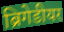
ब्रिगेडीयर